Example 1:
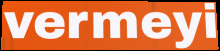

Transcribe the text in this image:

vermeyi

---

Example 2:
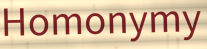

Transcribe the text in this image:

Homonymy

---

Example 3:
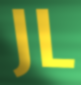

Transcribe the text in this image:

JL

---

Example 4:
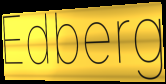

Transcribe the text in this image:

Edberg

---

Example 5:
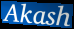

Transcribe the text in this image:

Akash